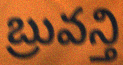
బ్రువన్తి